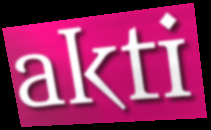
akti